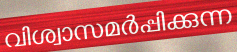
വിശ്വാസമർപ്പിക്കുന്ന